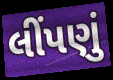
લીંપણું